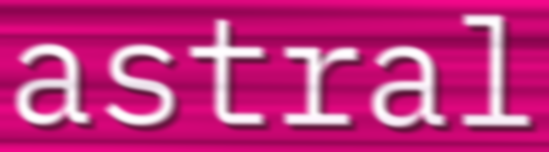
astral